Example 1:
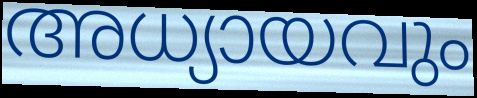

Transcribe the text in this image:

അധ്യായവും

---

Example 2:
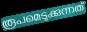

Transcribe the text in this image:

രൂപമെടുക്കുന്നത്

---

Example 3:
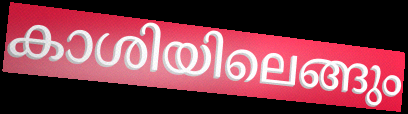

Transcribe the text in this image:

കാശിയിലെങ്ങും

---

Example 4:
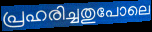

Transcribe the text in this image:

പ്രഹരിച്ചതുപോലെ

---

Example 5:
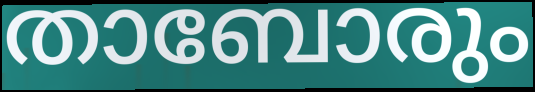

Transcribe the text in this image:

താബോരും